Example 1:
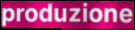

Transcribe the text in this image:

produzione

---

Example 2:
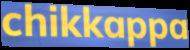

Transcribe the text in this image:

chikkappa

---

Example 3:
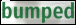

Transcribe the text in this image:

bumped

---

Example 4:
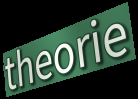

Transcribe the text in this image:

theorie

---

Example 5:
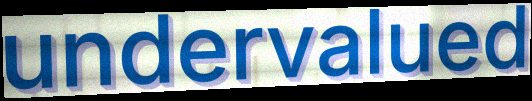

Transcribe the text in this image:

undervalued